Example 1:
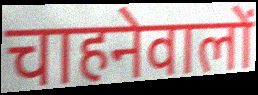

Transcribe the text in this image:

चाहनेवालों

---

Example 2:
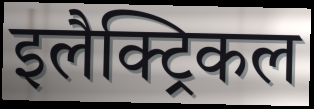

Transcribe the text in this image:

इलैक्ट्रिकल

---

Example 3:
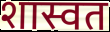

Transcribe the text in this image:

शास्वत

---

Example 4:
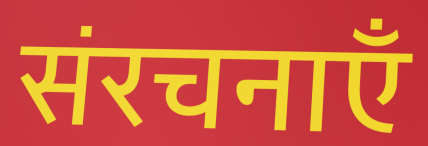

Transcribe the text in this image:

संरचनाएँ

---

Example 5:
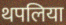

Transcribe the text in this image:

थपलिया